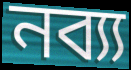
নব্য্য